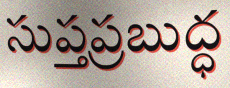
సుప్తప్రబుద్ధ